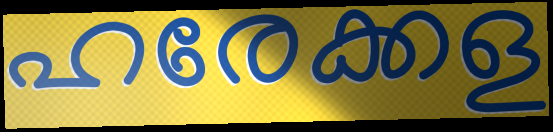
ഹരേക്കള